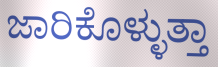
ಜಾರಿಕೊಳ್ಳುತ್ತಾ